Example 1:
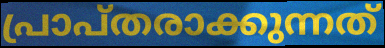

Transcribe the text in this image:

പ്രാപ്തരാക്കുന്നത്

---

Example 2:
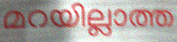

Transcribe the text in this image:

മറയില്ലാത്ത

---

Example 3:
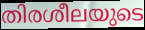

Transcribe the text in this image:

തിരശീലയുടെ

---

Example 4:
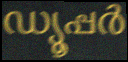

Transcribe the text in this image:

ഡ്യൂപ്പർ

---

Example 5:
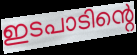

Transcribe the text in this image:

ഇടപാടിന്റെ